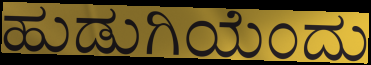
ಹುಡುಗಿಯೆಂದು